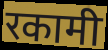
रकामी